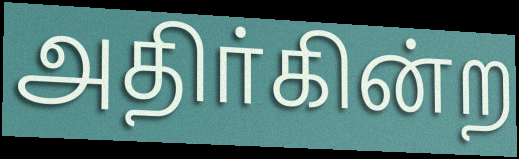
அதிர்கின்ற